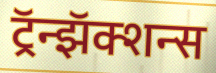
ट्रॅन्झॅक्शन्स